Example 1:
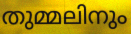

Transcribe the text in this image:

തുമ്മലിനും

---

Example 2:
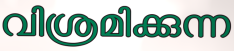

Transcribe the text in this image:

വിശ്രമിക്കുന്ന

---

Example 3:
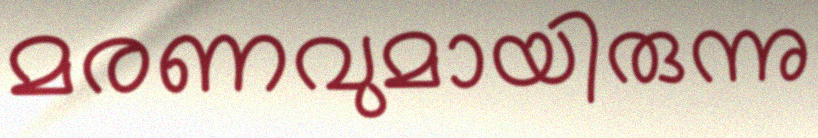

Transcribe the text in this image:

മരണവുമായിരുന്നു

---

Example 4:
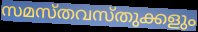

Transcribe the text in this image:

സമസ്തവസ്തുക്കളും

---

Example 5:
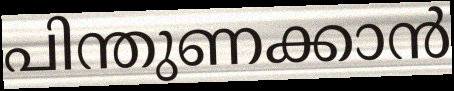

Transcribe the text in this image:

പിന്തുണക്കാൻ